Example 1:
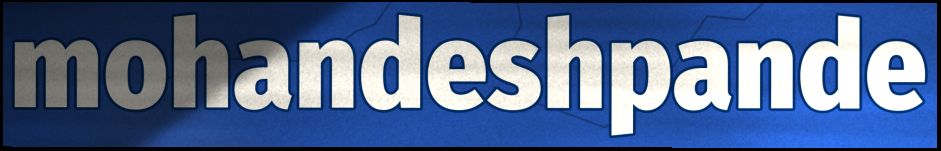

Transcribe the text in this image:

mohandeshpande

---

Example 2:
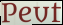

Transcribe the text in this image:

Peut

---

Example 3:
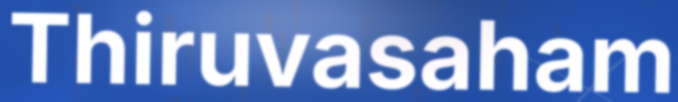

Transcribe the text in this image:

Thiruvasaham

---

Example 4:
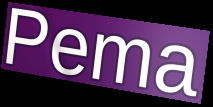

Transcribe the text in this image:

Pema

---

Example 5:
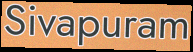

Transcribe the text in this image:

Sivapuram